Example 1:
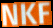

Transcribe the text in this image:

NKF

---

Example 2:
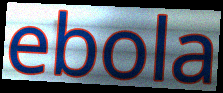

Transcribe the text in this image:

ebola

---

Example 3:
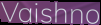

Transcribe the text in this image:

Vaishno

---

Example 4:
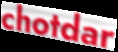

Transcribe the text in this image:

chotdar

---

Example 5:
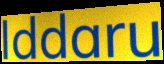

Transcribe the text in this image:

Iddaru